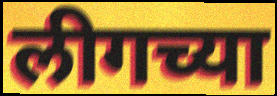
लीगच्या